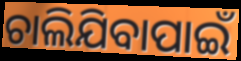
ଚାଲିଯିବାପାଇଁ